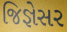
જિજ્ઞેસર